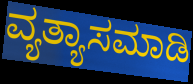
ವ್ಯತ್ಯಾಸಮಾಡಿ